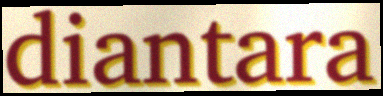
diantara